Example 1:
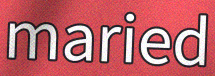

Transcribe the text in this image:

maried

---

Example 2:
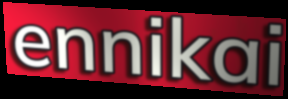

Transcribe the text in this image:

ennikai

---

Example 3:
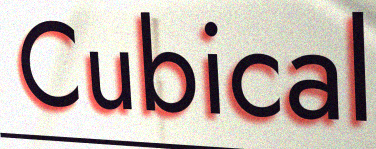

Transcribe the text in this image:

Cubical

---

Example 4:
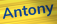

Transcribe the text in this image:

Antony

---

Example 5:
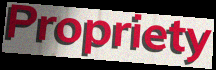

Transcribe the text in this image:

Propriety